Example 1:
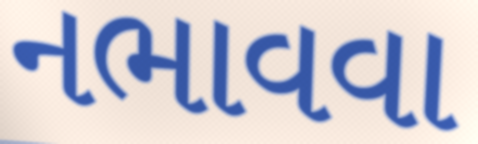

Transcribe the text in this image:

નભાવવા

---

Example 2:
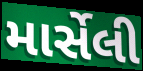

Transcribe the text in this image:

માર્સેલી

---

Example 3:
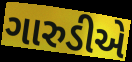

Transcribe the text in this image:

ગારુડીએ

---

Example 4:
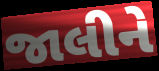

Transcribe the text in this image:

જાલીને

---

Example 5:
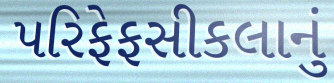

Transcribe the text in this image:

પરિફેફસીકલાનું